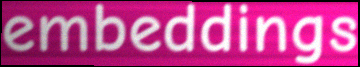
embeddings